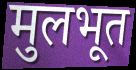
मुलभूत